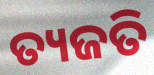
ତ୍ୟଜତି